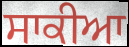
ਸਾਕੀਆ